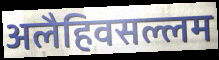
अलैहिवसल्लम